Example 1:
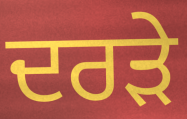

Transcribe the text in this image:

ਦਰੜੇ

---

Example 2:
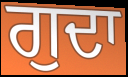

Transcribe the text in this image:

ਗੁਦਾ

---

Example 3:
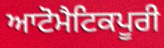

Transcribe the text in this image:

ਆਟੋਮੈਟਿਕਪੂਰੀ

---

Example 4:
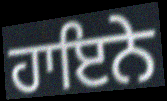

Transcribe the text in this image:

ਹਾਇਨੇ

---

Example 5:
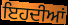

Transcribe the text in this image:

ਇਹਦੀਆਂ